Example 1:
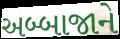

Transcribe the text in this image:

અબ્બાજાને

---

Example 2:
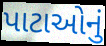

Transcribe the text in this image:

પાટાઓનું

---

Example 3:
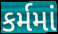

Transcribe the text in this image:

કર્મમાં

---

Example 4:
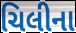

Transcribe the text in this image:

ચિલીના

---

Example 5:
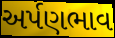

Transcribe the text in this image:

અર્પણભાવ